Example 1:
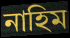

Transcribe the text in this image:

নাহিম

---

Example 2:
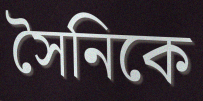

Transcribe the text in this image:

সৈনিকে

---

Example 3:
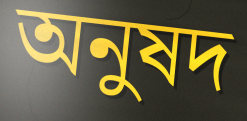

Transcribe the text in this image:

অনুষদ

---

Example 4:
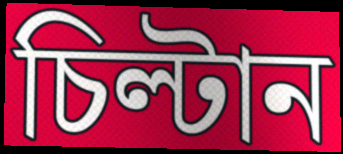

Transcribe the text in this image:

চিল্টান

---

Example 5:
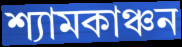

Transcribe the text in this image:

শ্যামকাঞ্চন